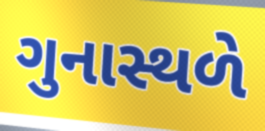
ગુનાસ્થળે